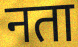
नता